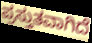
ಪ್ರಸ್ತುತವಾಗಿದೆ